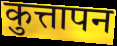
कुत्तापन